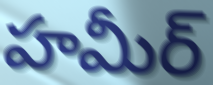
హమీర్